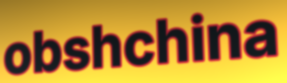
obshchina